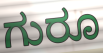
ಗುರೂ